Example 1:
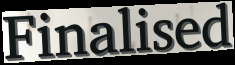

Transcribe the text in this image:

Finalised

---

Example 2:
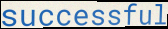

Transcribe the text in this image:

successful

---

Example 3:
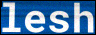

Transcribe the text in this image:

lesh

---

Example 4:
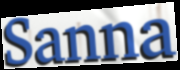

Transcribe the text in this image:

Sanna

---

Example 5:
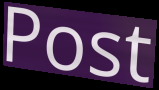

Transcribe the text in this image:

Post